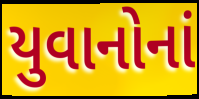
યુવાનોનાં